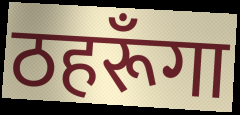
ठहरूँगा